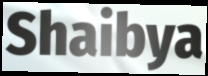
Shaibya